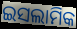
ଇସଲାମିକ